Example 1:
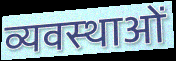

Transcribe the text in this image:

व्यवस्थाओें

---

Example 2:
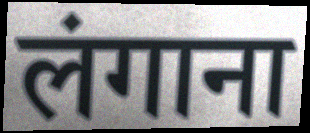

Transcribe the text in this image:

लंगाना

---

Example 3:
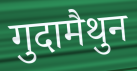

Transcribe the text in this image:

गुदामैथुन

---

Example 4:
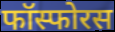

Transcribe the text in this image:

फॉस्फोरस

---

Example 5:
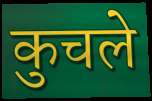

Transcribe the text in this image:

कुचले